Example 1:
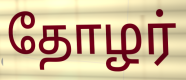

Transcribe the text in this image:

தோழர்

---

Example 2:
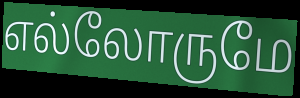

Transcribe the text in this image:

எல்லோருமே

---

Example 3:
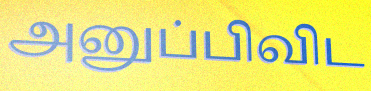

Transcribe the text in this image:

அனுப்பிவிட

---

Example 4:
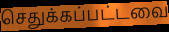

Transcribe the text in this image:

செதுக்கப்பட்டவை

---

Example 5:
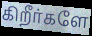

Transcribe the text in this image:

கிறீர்களே